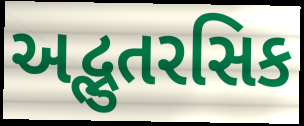
અદ્ભુતરસિક